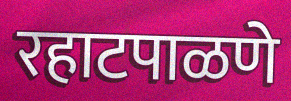
रहाटपाळणे